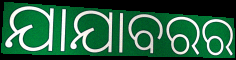
ଯାଯାବରର